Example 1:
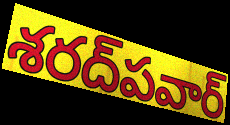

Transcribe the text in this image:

శరద్‌పవార్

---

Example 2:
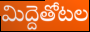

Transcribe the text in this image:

మిద్దెతోటల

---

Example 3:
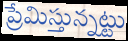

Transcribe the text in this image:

ప్రేమిస్తున్నట్టు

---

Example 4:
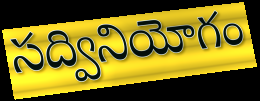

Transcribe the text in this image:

సద్వినియోగం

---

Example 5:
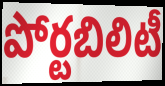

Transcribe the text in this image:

పోర్టబిలిటీ